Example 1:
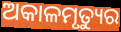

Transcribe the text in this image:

ଅକାଳମୃତ୍ୟୁର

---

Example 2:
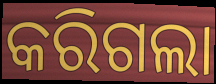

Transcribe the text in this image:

କରିଗଲା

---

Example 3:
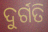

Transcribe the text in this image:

ଦୁର୍ଗତି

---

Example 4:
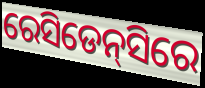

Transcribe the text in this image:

ରେସିଡେନ୍‌ସିରେ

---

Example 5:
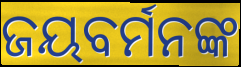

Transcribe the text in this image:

ଜୟବର୍ମନଙ୍କ